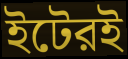
ইটেরই